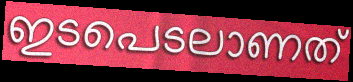
ഇടപെടലാണത്